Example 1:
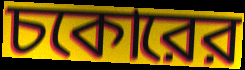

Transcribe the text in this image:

চকোরের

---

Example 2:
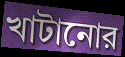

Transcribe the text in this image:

খাটানোর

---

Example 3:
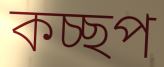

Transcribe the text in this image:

কচ্ছপ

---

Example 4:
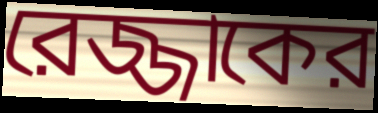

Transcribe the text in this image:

রেজ্জাকের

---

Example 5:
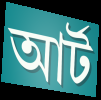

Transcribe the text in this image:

আর্ট